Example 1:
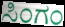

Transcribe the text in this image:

ಸಿಂಗಂ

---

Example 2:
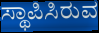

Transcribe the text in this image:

ಸ್ಥಾಪಿಸಿರುವ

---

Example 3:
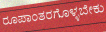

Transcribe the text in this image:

ರೂಪಾಂತರಗೊಳ್ಳಬೇಕು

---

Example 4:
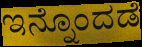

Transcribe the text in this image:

ಇನ್ನೊಂದಡೆ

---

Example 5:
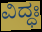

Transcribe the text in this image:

ವಿದ್ಧಃ